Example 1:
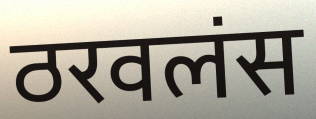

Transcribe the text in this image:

ठरवलंस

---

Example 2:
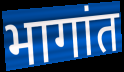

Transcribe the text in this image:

भागांत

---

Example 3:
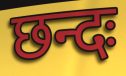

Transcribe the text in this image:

छन्दः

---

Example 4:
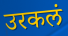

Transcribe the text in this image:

उरकलं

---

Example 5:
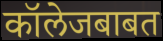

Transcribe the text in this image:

कॉलेजबाबत